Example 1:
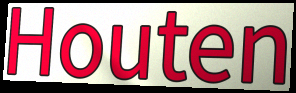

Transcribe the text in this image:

Houten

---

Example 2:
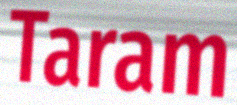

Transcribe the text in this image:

Taram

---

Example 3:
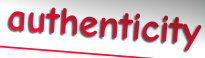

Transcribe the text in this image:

authenticity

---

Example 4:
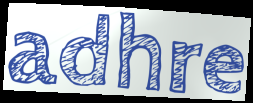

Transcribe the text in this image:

adhre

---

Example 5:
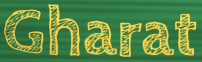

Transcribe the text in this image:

Gharat